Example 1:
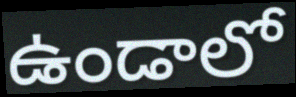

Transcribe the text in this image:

ఉండాలో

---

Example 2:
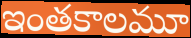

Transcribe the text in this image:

ఇంతకాలమూ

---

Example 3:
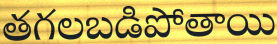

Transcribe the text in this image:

తగలబడిపోతాయి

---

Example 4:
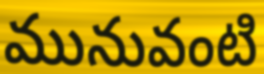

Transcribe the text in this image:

మునువంటి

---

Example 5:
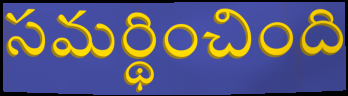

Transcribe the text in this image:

సమర్థించింది